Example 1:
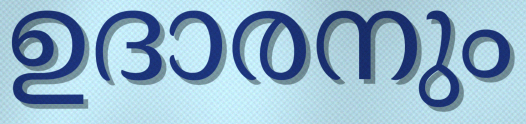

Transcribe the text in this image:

ഉദാരനും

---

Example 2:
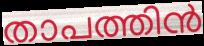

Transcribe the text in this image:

താപത്തിൻ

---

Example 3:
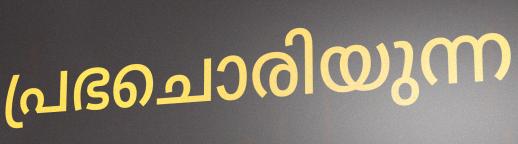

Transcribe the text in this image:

പ്രഭചൊരിയുന്ന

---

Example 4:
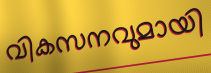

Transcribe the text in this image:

വികസനവുമായി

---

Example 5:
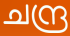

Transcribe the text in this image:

ചന്ദ്ര